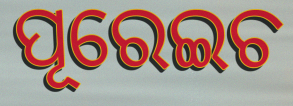
ପୂରେଇଚ